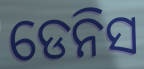
ଡେନିସ